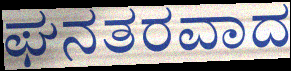
ಘನತರವಾದ